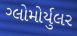
ગ્લોમોર્યુલર